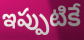
ఇప్పుటికే